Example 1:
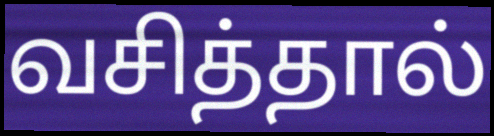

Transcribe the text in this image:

வசித்தால்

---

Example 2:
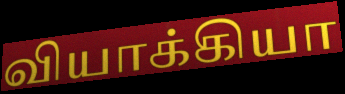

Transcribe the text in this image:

வியாக்கியா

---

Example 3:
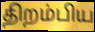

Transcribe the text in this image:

திறம்பிய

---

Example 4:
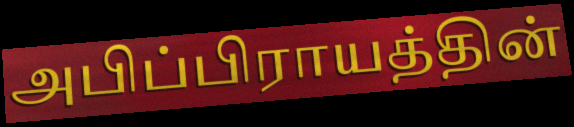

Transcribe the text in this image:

அபிப்பிராயத்தின்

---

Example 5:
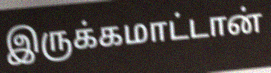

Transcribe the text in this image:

இருக்கமாட்டான்